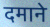
दमाने